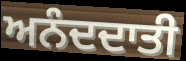
ਅਨੰਦਦਾਤੀ